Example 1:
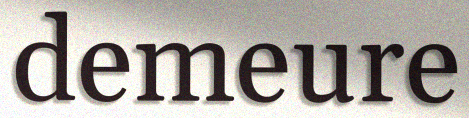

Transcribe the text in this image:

demeure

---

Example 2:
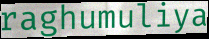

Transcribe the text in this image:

raghumuliya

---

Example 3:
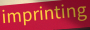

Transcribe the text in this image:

imprinting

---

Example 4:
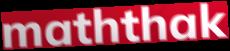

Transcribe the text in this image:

maththak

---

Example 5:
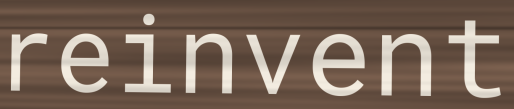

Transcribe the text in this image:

reinvent